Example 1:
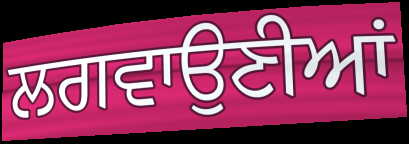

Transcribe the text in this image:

ਲਗਵਾਉਣੀਆਂ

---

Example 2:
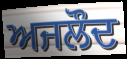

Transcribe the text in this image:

ਅਜਲੌਦ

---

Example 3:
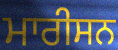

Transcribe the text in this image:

ਮਾਰੀਸਨ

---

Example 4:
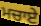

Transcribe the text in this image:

ਮਚਾਏ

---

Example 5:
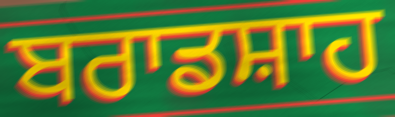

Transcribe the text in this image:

ਬਰਾਡਸ਼ਾਹ